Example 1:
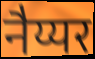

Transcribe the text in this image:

नैय्यर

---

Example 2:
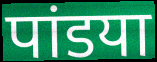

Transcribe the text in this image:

पांडया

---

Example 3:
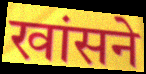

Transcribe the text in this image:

खांसने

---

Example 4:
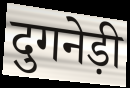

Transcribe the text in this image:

दुगनेड़ी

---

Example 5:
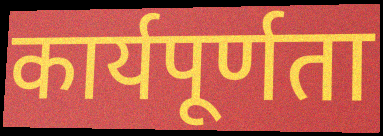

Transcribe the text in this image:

कार्यपूर्णता